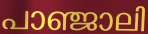
പാഞ്ജാലി